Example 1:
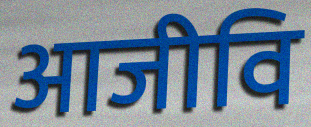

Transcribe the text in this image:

आजीवि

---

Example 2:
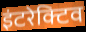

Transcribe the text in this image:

इंटरेक्टिव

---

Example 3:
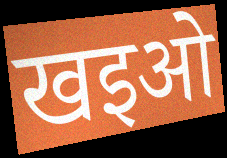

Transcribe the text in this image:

खइओ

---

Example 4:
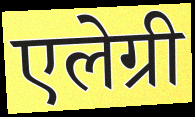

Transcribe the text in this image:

एलेग्री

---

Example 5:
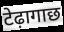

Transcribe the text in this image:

टेढ़ागाछ